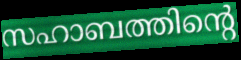
സഹാബത്തിന്റെ